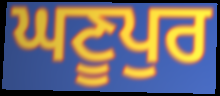
ਘਣੂਪੁਰ